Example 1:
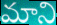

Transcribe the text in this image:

మాని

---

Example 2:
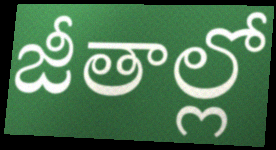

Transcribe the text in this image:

జీతాల్లో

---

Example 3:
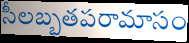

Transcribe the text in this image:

సీలబ్బతపరామాసం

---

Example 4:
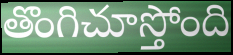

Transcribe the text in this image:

తొంగిచూస్తోంది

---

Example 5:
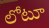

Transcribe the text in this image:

లోటూ